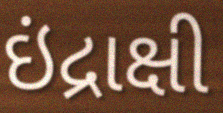
ઇંદ્રાક્ષી